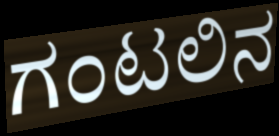
ಗಂಟಲಿನ